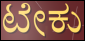
ಟೇಕು